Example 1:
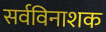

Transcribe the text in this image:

सर्वविनाशक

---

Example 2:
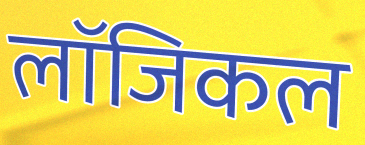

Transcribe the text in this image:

लॉजिकल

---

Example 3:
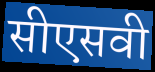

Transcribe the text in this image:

सीएसवी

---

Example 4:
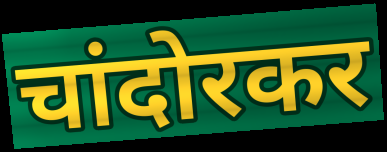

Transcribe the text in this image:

चांदोरकर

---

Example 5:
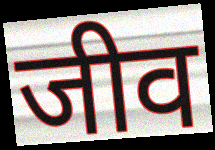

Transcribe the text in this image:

जीव